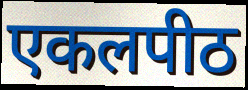
एकलपीठ